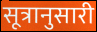
सूत्रानुसारी